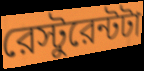
রেস্টুরেন্টটা